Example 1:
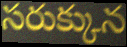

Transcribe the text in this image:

సరుక్కున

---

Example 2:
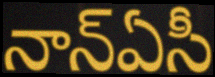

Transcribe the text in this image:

నాన్ఏసీ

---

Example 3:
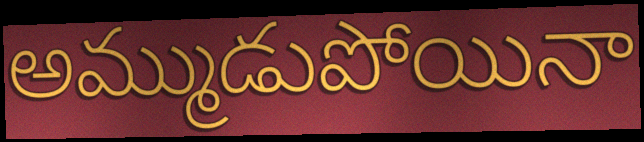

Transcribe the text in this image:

అమ్ముడుపోయినా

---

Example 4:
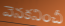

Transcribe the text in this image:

వెనకనించీ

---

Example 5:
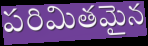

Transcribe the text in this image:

పరిమితమైన